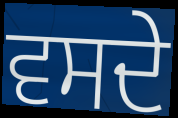
ਵਸਦੇ